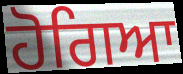
ਹੋਗਿਆ